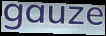
gauze